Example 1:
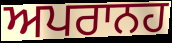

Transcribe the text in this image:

ਅਪਰਾਨਹ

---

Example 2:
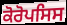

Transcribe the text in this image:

ਕੋਰੋਪਸਿਸ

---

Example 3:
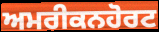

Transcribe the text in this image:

ਅਮਰੀਕਨਹੋਰਟ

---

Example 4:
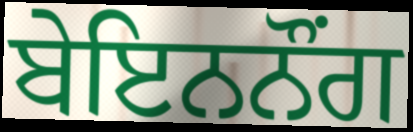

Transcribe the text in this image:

ਬੇਇਨਨੌੰਗ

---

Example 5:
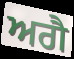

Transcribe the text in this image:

ਅਗੈ